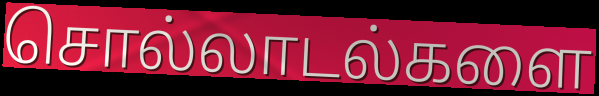
சொல்லாடல்களை